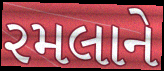
રમલાને